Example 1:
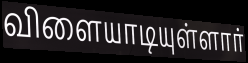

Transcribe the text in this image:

விளையாடியுள்ளார்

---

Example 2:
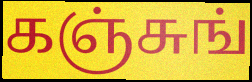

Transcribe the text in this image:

கஞ்சுங்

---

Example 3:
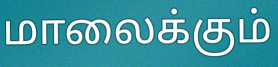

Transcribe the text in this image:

மாலைக்கும்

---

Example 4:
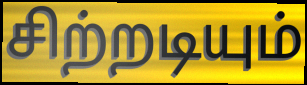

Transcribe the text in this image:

சிற்றடியும்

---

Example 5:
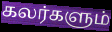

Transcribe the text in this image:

கலர்களும்